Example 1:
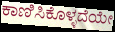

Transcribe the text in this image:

ಕಾಣಿಸಿಕೊಳ್ಳದೆಯೇ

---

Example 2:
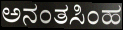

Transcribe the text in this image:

ಅನಂತಸಿಂಹ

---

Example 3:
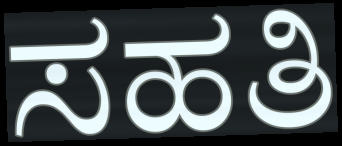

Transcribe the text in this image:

ಸಹತಿ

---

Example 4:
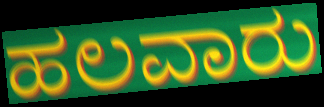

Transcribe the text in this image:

ಹಲವಾರು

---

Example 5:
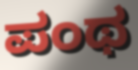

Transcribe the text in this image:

ಪಂಥ